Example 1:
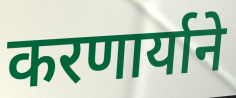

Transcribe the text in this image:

करणार्याने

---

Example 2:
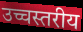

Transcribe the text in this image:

उच्चस्तरीय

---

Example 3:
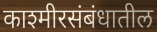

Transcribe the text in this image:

काश्मीरसंबंधातील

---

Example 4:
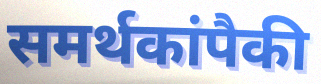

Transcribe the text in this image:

समर्थकांपैकी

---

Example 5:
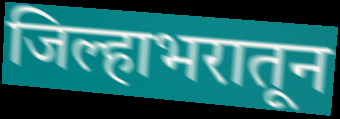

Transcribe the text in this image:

जिल्हाभरातून